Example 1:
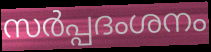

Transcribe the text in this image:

സർപ്പദംശനം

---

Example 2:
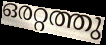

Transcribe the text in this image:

ഒരറ്റത്തു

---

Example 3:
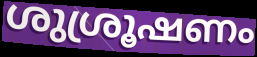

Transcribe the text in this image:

ശുശ്രൂഷണം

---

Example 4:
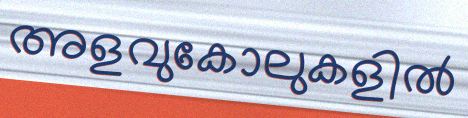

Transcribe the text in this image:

അളവുകോലുകളിൽ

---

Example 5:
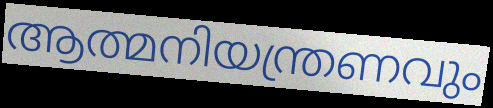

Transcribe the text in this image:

ആത്മനിയന്ത്രണവും